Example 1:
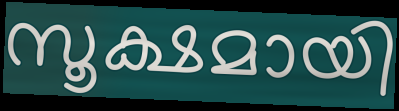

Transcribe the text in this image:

സൂക്ഷമായി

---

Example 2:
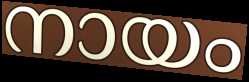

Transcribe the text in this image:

നായം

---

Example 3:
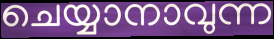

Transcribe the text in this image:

ചെയ്യാനാവുന്ന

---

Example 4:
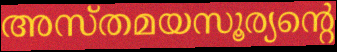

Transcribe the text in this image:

അസ്തമയസൂര്യന്റെ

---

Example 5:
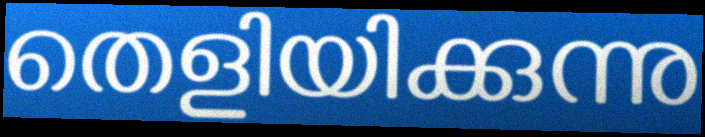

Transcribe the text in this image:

തെളിയിക്കുന്നു